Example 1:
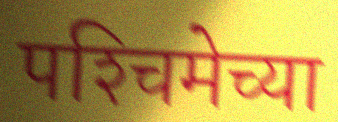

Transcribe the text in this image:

पश्चिमेच्या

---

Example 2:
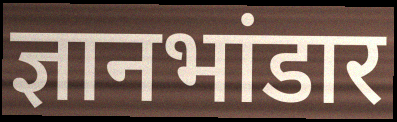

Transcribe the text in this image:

ज्ञानभांडार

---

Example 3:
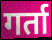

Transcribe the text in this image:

गर्ता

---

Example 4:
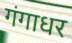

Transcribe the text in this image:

गंगाधर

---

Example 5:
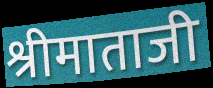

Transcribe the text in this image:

श्रीमाताजी